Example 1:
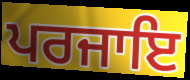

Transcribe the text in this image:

ਪਰਜਾਇ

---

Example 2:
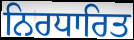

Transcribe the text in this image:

ਨਿਰਧਾਰਿਤ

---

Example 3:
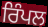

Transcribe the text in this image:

ਰਿੰਪਲ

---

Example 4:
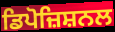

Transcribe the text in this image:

ਡਿਪੋਜ਼ਿਸ਼ਨਲ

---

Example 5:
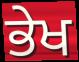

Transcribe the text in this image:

ਭੇਖ